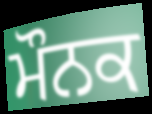
ਮੌਨਕ